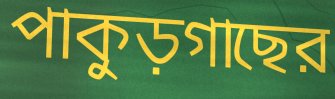
পাকুড়গাছের